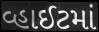
વ્હાઈટમાં